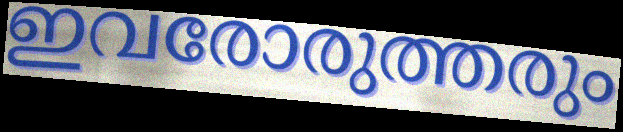
ഇവരോരുത്തരും